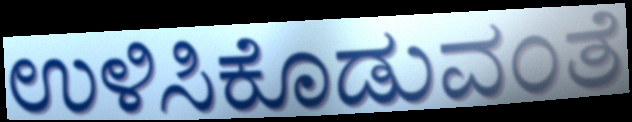
ಉಳಿಸಿಕೊಡುವಂತೆ